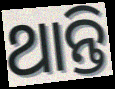
ଥାନ୍ତି